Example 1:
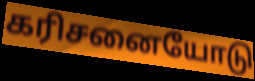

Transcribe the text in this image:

கரிசனையோடு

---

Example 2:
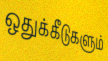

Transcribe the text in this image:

ஒதுக்கீடுகளும்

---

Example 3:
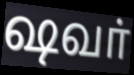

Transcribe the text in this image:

ஷவர்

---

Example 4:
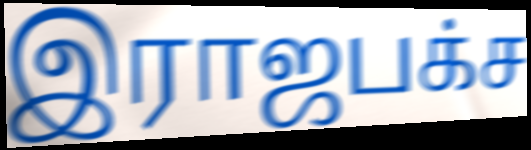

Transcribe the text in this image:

இராஜபக்ச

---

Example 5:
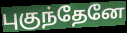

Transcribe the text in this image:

புகுந்தேனே